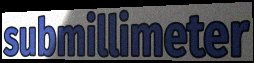
submillimeter